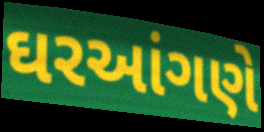
ઘરઆંગણે